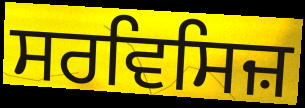
ਸਰਵਿਸਿਜ਼